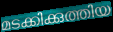
മടക്കിക്കുത്തിയ